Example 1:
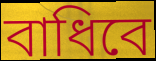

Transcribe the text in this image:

বাধিবে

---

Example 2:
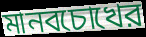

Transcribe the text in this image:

মানবচোখের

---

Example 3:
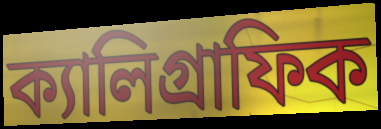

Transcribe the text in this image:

ক্যালিগ্রাফিক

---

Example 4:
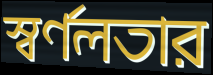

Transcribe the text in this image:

স্বর্ণলতার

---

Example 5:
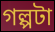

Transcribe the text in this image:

গল্পটা